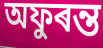
অফুৰন্ত